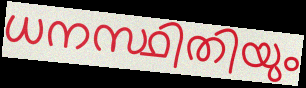
ധനസ്ഥിതിയും